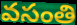
వసంతి